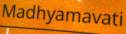
Madhyamavati